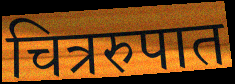
चित्ररुपात